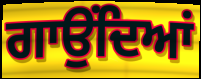
ਗਾਉਂਦਿਆਂ